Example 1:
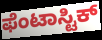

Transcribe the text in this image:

ಫೆಂಟಾಸ್ಟಿಕ್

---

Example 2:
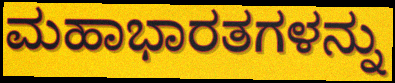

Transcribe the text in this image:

ಮಹಾಭಾರತಗಳನ್ನು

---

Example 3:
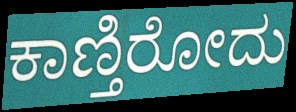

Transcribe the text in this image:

ಕಾಣ್ತಿರೋದು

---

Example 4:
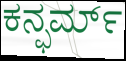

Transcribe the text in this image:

ಕನ್ಫರ್ಮ್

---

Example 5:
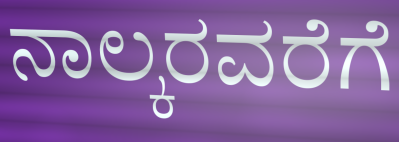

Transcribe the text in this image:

ನಾಲ್ಕರವರೆಗೆ